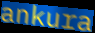
ankura